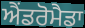
ਐਂਡਰੋਮੈਡਾ